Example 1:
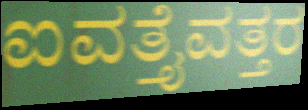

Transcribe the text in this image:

ಐವತ್ತೈವತ್ತರ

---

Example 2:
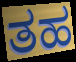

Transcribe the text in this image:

ತಹ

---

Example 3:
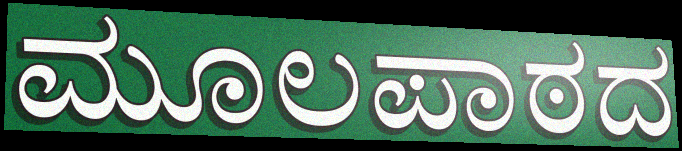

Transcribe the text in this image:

ಮೂಲಪಾಠದ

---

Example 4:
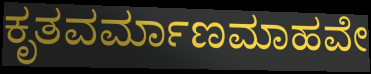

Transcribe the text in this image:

ಕೃತವರ್ಮಾಣಮಾಹವೇ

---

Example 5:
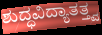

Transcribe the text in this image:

ಶುದ್ಧವಿದ್ಯಾತತ್ತ್ವ